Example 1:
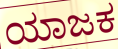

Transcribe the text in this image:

ಯಾಜಕ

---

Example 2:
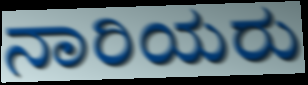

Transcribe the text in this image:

ನಾರಿಯರು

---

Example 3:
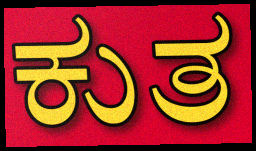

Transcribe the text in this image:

ಕುತ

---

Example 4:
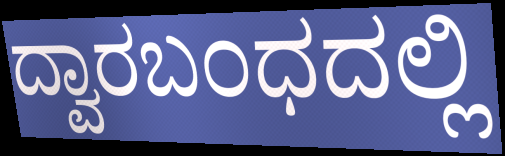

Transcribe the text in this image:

ದ್ವಾರಬಂಧದಲ್ಲಿ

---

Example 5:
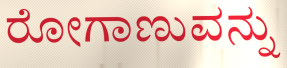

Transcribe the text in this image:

ರೋಗಾಣುವನ್ನು